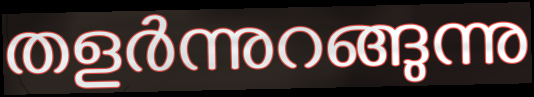
തളർന്നുറങ്ങുന്നു